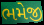
ભમેજી